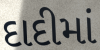
દાદીમાં